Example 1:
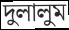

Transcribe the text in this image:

দুলালুম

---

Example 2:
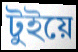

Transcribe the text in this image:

টুইয়ে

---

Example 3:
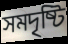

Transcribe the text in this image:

সমদৃষ্টি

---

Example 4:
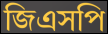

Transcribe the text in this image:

জিএসপি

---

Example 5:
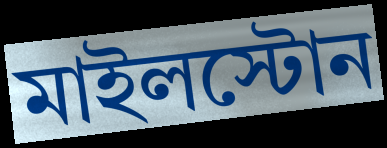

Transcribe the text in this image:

মাইলস্টোন